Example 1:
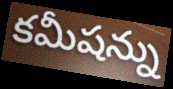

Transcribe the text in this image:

కమీషన్ను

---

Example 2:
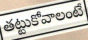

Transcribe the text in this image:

తట్టుకోవాలంటే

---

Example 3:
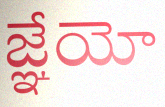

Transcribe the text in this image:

జ్ఞేయో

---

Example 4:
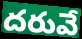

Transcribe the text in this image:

దరువే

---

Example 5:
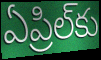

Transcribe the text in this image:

ఏప్రిల్‌కు